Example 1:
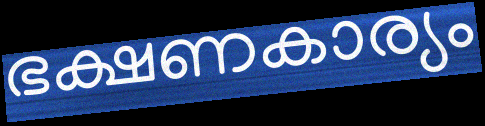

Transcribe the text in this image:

ഭക്ഷണകാര്യം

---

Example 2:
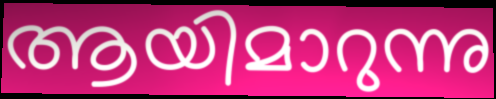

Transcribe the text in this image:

ആയിമാറുന്നു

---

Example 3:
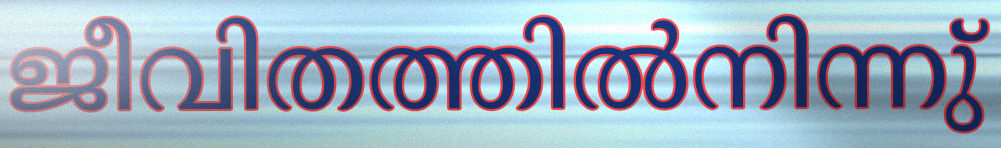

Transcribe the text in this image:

ജീവിതത്തിൽനിന്നു്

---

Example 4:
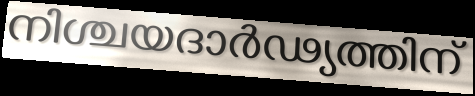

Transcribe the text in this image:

നിശ്ചയദാർഢ്യത്തിന്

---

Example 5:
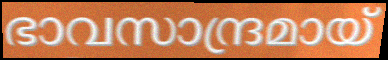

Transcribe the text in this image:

ഭാവസാന്ദ്രമായ്